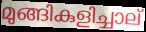
മുങ്ങികുളിച്ചാല്